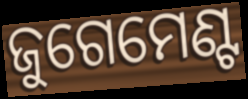
ଜୁଗେମେଣ୍ଟ